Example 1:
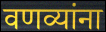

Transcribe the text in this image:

वणव्यांना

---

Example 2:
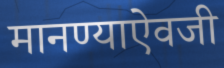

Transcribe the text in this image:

मानण्याऐवजी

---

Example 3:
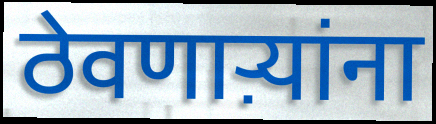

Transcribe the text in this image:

ठेवणाऱ्‍यांना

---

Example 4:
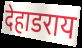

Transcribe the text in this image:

देहाडराय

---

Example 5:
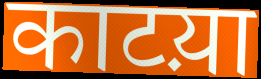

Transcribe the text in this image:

काटय़ा